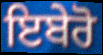
ਇਬੇਰੋ